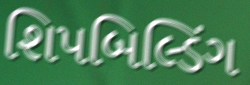
શિપબિલ્ડિંગ